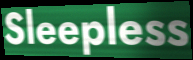
Sleepless